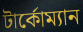
টার্কোম্যান